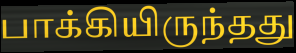
பாக்கியிருந்தது